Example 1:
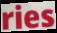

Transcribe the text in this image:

ries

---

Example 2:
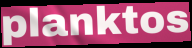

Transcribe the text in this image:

planktos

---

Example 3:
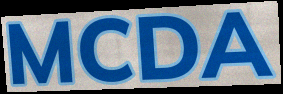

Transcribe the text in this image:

MCDA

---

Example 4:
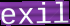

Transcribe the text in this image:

exil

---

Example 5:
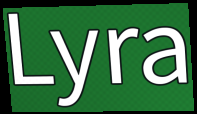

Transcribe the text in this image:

Lyra